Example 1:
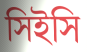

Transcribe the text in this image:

সিইসি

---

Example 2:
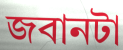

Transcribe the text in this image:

জবানটা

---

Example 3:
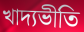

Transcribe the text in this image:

খাদ্যভীতি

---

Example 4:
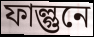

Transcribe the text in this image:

ফাল্গুনে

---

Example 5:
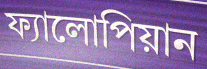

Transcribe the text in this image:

ফ্যালোপিয়ান